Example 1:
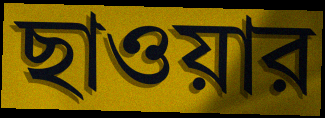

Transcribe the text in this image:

ছাওয়ার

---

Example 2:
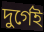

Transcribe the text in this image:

দুর্গেই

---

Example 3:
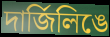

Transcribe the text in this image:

দার্জিলিঙে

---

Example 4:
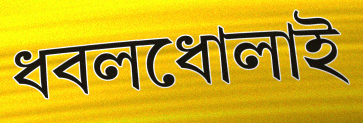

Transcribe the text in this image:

ধবলধোলাই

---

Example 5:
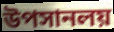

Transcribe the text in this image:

উপসানলয়